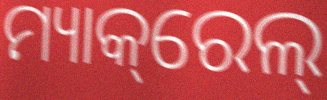
ମ୍ୟାକ୍‌ରେଲ୍